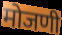
मोजणी